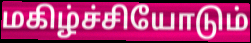
மகிழ்ச்சியோடும்